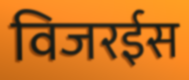
विजरईस